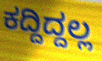
ಕದ್ದಿದ್ದಲ್ಲ